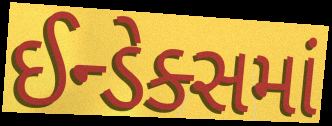
ઈન્ડેક્સમાં